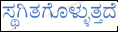
ಸ್ಥಗಿತಗೊಳ್ಳುತ್ತದೆ